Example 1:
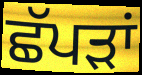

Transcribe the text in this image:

ਛੱਪੜਾਂ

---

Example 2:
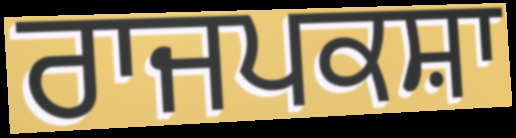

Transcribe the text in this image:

ਰਾਜਪਕਸ਼ਾ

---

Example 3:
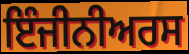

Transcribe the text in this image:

ਇੰਜੀਨੀਅਰਸ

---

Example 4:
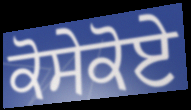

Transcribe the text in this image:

ਕੋਸੇਕੋਏ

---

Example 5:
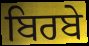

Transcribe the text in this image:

ਬਿਰਬੇ